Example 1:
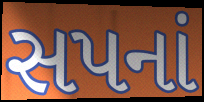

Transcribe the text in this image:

સપનાં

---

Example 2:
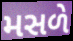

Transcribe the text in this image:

મસળે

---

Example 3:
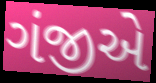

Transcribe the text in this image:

ગંજીએ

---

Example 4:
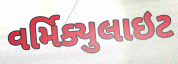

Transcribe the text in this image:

વર્મિક્યુલાઇટ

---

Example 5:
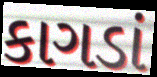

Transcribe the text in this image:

કાગડાં